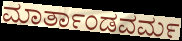
ಮಾರ್ತಾಂಡವರ್ಮ